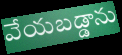
వేయబడ్డాను